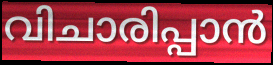
വിചാരിപ്പാൻ